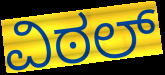
ವಿಠಲ್